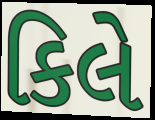
કિલે